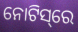
ନୋଟିସ୍‌ରେ